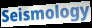
Seismology